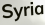
Syria